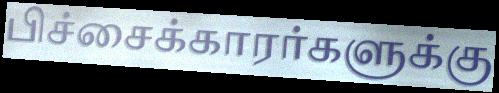
பிச்சைக்காரர்களுக்கு